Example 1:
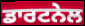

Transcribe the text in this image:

ਡਾਰਟਨੇਲ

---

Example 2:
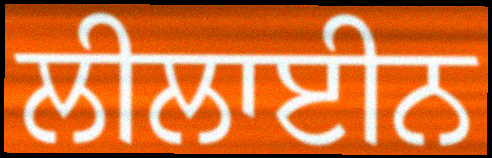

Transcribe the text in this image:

ਲੀਲਾਈਨ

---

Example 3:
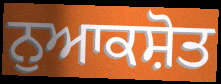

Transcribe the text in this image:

ਨੁਆਕਸ਼ੋਤ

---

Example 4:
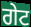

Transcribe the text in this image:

ਗੇਟ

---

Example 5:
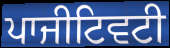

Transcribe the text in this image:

ਪਾਜੀਟਿਵਟੀ